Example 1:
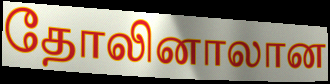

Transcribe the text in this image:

தோலினாலான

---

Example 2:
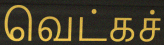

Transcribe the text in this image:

வெட்கச்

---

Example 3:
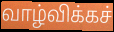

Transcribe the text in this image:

வாழ்விக்கச்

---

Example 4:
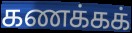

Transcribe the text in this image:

கணக்கக்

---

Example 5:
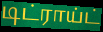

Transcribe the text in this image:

டிட்ராய்ட்